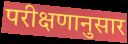
परीक्षणानुसार